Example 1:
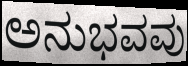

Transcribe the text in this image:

ಅನುಭವವು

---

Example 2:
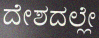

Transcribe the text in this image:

ದೇಶದಲ್ಲೇ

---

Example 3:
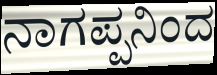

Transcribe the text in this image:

ನಾಗಪ್ಪನಿಂದ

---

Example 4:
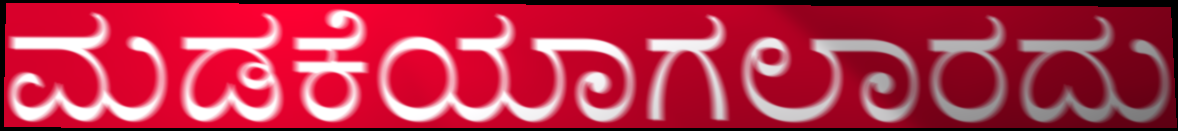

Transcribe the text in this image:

ಮಡಕೆಯಾಗಲಾರದು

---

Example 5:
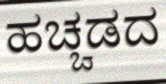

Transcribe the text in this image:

ಹಚ್ಚಡದ